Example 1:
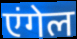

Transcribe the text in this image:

एंगेल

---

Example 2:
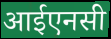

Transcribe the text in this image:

आईएनसी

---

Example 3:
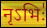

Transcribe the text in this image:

नृऽभिः॑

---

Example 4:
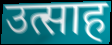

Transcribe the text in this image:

उत्‍साह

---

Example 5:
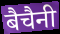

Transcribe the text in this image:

बैचैनी